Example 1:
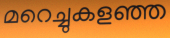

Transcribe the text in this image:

മറെച്ചുകളഞ്ഞ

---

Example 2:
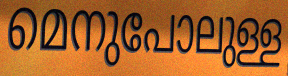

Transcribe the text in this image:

മെനുപോലുള്ള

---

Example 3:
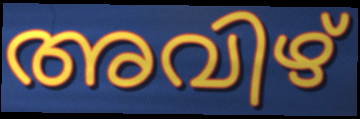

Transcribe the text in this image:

അവിഴ്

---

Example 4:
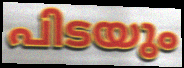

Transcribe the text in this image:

പിടയും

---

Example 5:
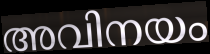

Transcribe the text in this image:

അവിനയം